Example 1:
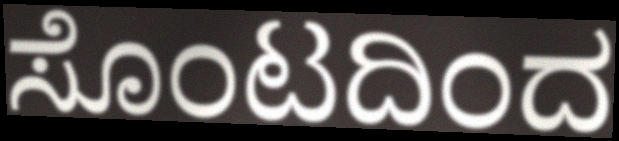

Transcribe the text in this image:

ಸೊಂಟದಿಂದ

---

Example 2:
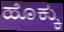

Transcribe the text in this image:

ಹೊಕ್ಕು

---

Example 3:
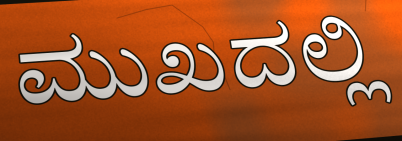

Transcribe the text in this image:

ಮುಖದಲ್ಲಿ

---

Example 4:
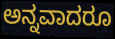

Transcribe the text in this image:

ಅನ್ನವಾದರೂ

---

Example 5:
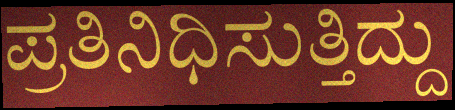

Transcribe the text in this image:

ಪ್ರತಿನಿಧಿಸುತ್ತಿದ್ದು